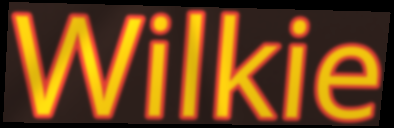
Wilkie